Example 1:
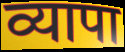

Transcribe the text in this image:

व्यापा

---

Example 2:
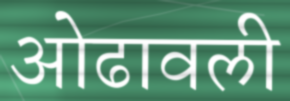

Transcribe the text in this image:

ओढावली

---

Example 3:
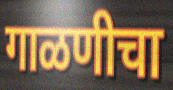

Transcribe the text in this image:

गाळणीचा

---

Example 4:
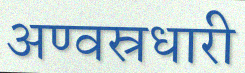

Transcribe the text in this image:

अण्वस्रधारी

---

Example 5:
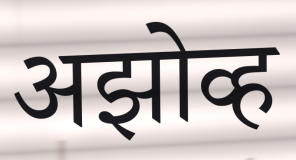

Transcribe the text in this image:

अझोव्ह